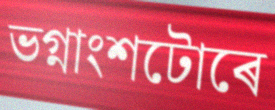
ভগ্নাংশটোৰে